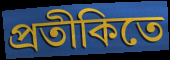
প্রতীকিতে